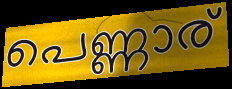
പെണ്ണാര്